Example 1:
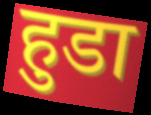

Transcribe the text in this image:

हुडा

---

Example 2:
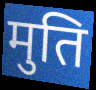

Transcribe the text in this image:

मुति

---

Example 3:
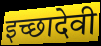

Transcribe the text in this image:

इच्छादेवी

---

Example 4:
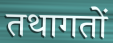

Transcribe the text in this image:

तथागतों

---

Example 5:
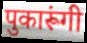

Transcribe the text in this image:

पुकारूंगी